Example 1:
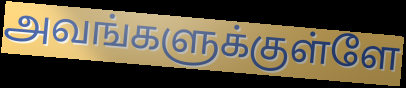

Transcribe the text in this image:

அவங்களுக்குள்ளே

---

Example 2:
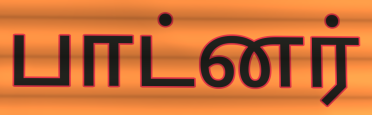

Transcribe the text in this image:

பாட்னர்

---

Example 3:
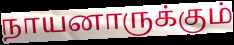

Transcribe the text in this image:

நாயனாருக்கும்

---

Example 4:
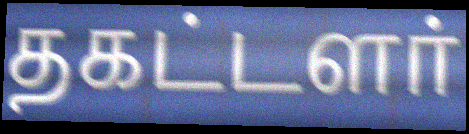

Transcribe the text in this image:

தகட்டளர்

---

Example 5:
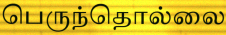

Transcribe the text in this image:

பெருந்தொல்லை